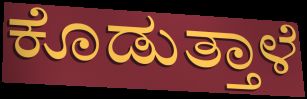
ಕೊಡುತ್ತಾಳೆ